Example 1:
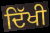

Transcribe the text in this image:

ਦਿੱਖੀ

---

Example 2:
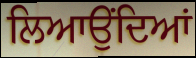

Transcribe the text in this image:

ਲਿਆਉਂਦਿਆਂ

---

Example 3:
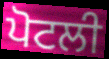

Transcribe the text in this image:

ਪੋਟਲੀ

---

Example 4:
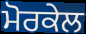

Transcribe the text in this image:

ਮੋਰਕੇਲ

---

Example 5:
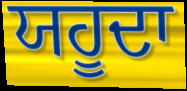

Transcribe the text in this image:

ਯਹੂਦਾ